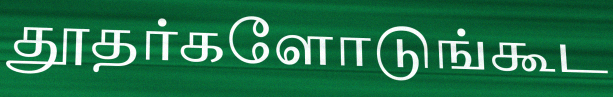
தூதர்களோடுங்கூட